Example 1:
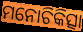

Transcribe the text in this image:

ମନୋଚିକିତ୍ସା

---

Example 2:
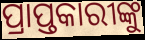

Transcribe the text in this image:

ପ୍ରାପ୍ତକାରୀଙ୍କୁ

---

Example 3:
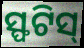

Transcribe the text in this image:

ସ୍ଫଟିସ୍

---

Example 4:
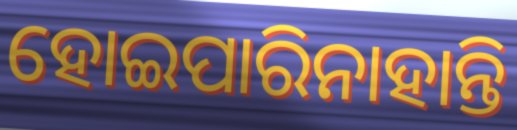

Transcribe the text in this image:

ହୋଇପାରିନାହାନ୍ତି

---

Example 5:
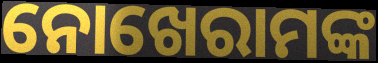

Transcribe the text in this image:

ନୋଖେରାମଙ୍କ